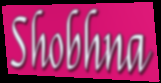
Shobhna